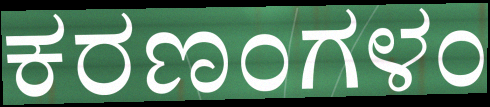
ಕರಣಂಗಳಂ